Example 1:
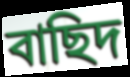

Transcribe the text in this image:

বাছিদ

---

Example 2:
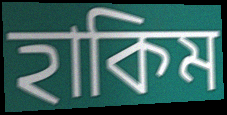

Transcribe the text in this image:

হাকিম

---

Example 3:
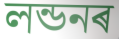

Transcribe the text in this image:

লন্ডনৰ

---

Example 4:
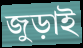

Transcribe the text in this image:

জুড়াই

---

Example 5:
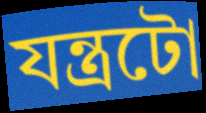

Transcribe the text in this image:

যন্ত্ৰটো